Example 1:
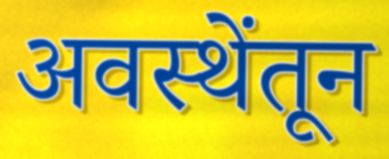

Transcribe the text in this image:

अवस्थेंतून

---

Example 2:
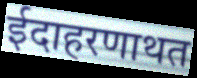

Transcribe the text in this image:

ईदाहरणाथत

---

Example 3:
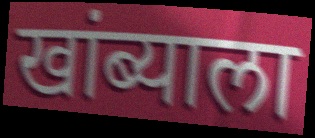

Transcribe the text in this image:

खांब्याला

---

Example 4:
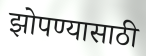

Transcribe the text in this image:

झोपण्यासाठी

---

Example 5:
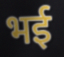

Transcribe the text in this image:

भई